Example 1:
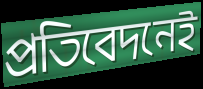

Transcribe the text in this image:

প্রতিবেদনেই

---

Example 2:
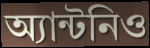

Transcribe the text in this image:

অ্যান্টনিও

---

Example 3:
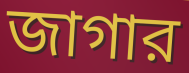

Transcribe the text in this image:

জাগার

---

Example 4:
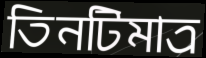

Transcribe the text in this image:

তিনটিমাত্র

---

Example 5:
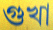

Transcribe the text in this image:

গুখা